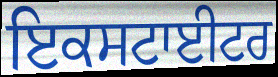
ਇਕਸਟਾਈਟਰ